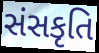
સંસકૃતિ